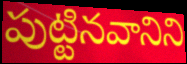
పుట్టినవానిని